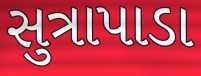
સુત્રાપાડા